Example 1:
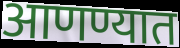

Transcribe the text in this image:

आणण्यात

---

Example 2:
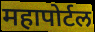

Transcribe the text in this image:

महापोर्टल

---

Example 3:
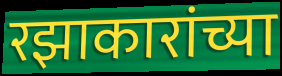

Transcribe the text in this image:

रझाकारांच्या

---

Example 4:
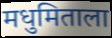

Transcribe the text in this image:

मधुमिताला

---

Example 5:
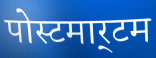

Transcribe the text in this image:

पोस्टमार्टम